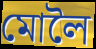
মোলৈ